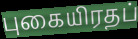
புகையிரதப்